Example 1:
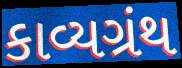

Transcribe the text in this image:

કાવ્યગ્રંથ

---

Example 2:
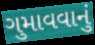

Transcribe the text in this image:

ગુમાવવાનું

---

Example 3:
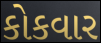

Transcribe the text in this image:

કોકવાર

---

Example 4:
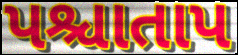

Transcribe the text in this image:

પશ્ચાતાપ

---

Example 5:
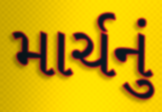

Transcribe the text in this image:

માર્ચનું